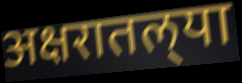
अक्षरातल्या